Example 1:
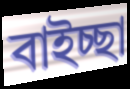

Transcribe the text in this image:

বাইচ্ছা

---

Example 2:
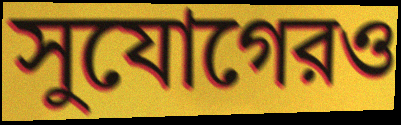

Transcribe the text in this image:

সুযোগেরও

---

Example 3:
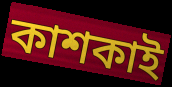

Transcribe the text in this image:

কাশকাই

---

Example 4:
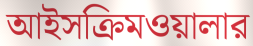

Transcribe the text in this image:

আইসক্রিমওয়ালার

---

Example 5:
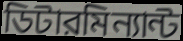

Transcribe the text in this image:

ডিটারমিন্যান্ট